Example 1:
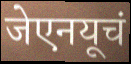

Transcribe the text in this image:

जेएनयूचं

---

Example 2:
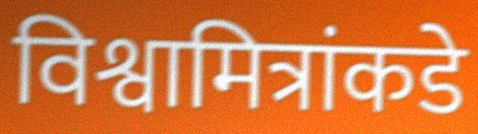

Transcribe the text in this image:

विश्वामित्रांकडे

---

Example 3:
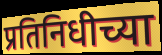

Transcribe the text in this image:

प्रतिनिधीच्या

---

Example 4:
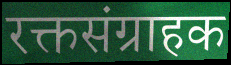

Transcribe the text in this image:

रक्तसंग्राहक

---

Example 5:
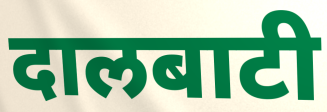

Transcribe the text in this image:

दालबाटी